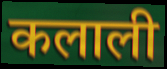
कलाली